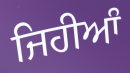
ਜਿਹੀਆੰ